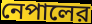
নেপালের